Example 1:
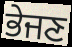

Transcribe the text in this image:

ਭੇਜਣ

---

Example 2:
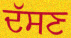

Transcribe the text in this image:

ਦੱਸਣ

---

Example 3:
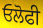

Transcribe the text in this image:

ਓਲੋਫੀ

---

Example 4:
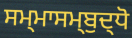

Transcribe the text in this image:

ਸਮ੍ਮਾਸਮ੍ਬੁਦ੍ਧੋ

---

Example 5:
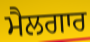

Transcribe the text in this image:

ਮੈਲਗਾਰ